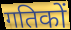
गतिकों